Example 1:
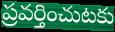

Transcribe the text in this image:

ప్రవర్తించుటకు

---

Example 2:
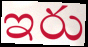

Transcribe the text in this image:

ఇరు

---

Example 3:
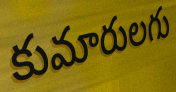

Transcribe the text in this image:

కుమారులగు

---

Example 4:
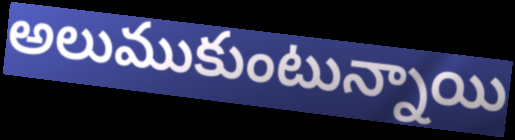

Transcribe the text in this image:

అలుముకుంటున్నాయి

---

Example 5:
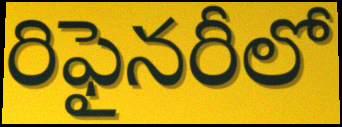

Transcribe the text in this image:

రిఫైనరీలో